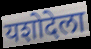
यशोदेला